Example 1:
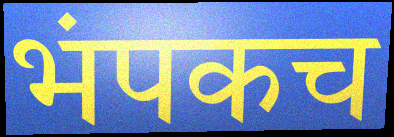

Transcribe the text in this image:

भंपकच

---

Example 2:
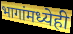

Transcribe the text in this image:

भागांमध्येही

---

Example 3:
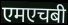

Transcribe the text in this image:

एमएचबी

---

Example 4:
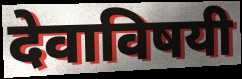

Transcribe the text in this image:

देवाविषयी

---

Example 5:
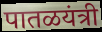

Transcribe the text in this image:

पातळयंत्री